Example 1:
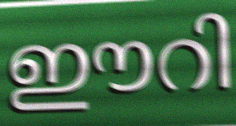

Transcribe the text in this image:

ഈറി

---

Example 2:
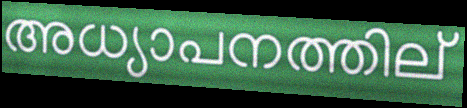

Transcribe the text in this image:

അധ്യാപനത്തില്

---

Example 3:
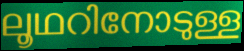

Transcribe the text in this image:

ലൂഥറിനോടുള്ള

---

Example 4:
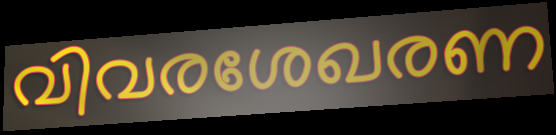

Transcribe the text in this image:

വിവരശേഖരണ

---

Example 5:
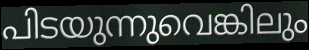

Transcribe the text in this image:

പിടയുന്നുവെങ്കിലും